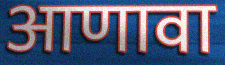
आणावा